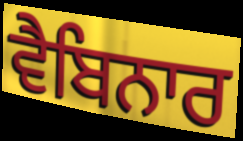
ਵੈਬਿਨਾਰ